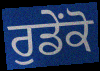
ਰੁਡੇਂਕੋ